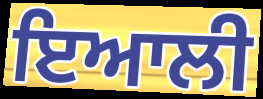
ਇਆਲੀ